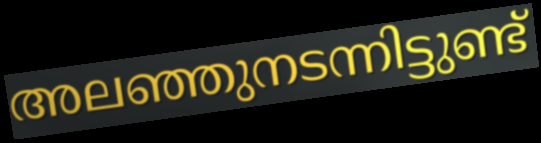
അലഞ്ഞുനടന്നിട്ടുണ്ട്